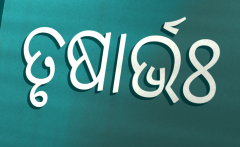
ତୃଷାର୍ଭଃ